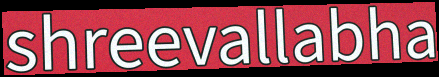
shreevallabha